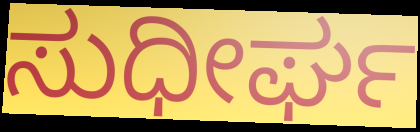
ಸುಧೀರ್ಘ